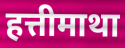
हत्तीमाथा